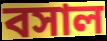
বসাল